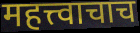
महत्त्वाचाच